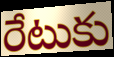
రేటుకు